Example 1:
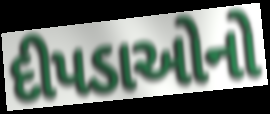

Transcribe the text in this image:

દીપડાઓનો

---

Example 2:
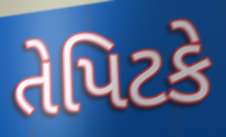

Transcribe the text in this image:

તેપિટકે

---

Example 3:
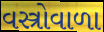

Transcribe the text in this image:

વસ્ત્રોવાળા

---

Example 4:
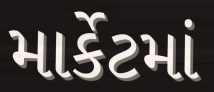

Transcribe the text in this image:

માર્કેટમાં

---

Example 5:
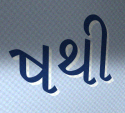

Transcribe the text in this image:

ષથી